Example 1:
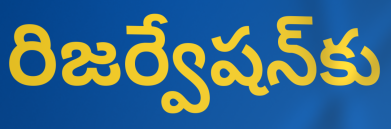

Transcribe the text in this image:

రిజర్వేషన్‌కు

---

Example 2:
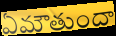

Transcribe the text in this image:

ఏమౌతుందా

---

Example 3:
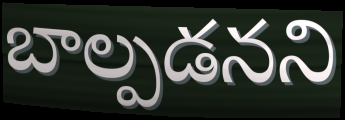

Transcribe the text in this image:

బాల్పడనని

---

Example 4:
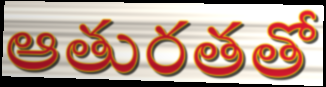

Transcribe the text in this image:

ఆతురతతో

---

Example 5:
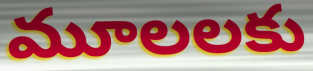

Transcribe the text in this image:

మూలలకు